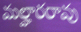
మల్హారరావు